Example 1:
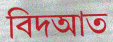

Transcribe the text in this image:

বিদআত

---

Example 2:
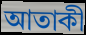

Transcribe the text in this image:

আতাকী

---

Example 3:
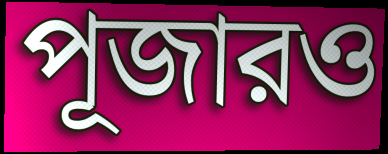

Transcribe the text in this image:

পূজারও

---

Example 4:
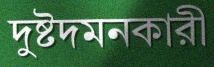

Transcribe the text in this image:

দুষ্টদমনকারী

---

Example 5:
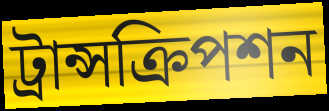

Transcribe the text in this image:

ট্রান্সক্রিপশন